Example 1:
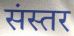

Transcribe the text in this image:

संस्तर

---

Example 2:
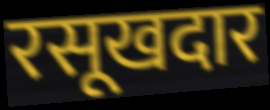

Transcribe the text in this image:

रसूखदार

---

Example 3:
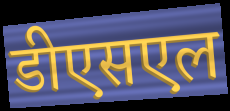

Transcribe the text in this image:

डीएसएल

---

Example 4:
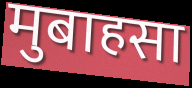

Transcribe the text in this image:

मुबाहसा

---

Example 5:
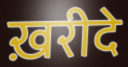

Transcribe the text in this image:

ख़रीदे